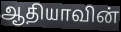
ஆதியாவின்